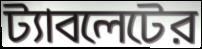
ট্যাবলেটের